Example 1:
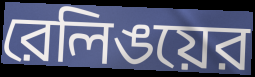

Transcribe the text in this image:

রেলিঙয়ের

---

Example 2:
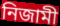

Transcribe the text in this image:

নিজামী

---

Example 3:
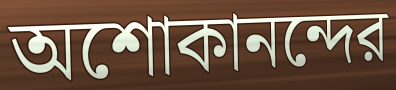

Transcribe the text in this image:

অশোকানন্দের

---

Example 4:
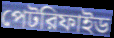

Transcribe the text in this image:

পেটরিফাইড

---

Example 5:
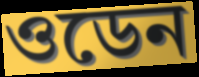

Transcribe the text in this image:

ওডেন